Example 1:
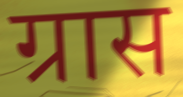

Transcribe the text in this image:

ग्रास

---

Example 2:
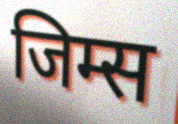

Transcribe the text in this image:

जिम्स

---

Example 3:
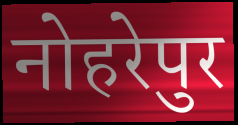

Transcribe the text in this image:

नोहरेपुर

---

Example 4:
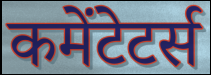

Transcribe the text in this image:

कमेंटेटर्स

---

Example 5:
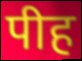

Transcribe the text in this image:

पीह